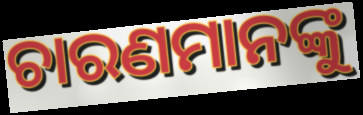
ଚାରଣମାନଙ୍କୁ